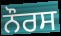
ਨੌਰਸ